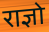
राज्ञो